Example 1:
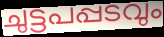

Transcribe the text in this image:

ചുട്ടപപ്പടവും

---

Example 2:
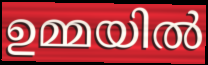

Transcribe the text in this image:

ഉമ്മയിൽ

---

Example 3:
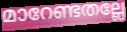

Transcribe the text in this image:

മാറേണ്ടതല്ലേ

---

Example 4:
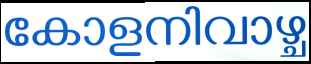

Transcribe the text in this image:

കോളനിവാഴ്ച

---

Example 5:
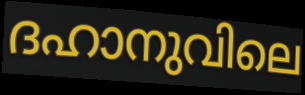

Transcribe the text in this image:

ദഹാനുവിലെ